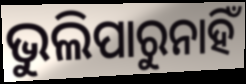
ଭୁଲିପାରୁନାହିଁ